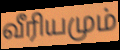
வீரியமும்